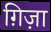
ग़िज़ा